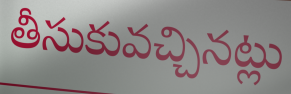
తీసుకువచ్చినట్లు